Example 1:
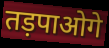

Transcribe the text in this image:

तड़पाओगे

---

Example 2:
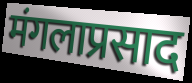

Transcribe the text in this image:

मंगलाप्रसाद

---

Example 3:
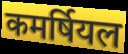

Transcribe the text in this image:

कमर्षियल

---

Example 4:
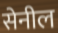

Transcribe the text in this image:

सेनील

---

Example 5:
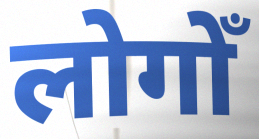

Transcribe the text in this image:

लोगोँ